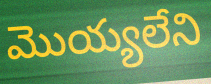
మొయ్యలేని